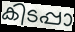
കിടപ്പാ